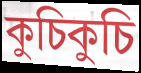
কুচিকুচি